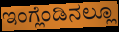
ಇಂಗ್ಲೆಂಡಿನಲ್ಲೂ